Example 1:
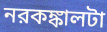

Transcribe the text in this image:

নরকঙ্কালটা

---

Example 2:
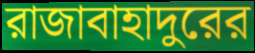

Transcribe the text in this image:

রাজাবাহাদুরের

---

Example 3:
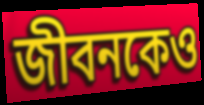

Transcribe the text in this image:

জীবনকেও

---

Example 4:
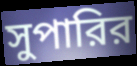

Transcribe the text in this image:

সুপারির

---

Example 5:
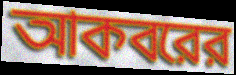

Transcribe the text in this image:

আকবরের